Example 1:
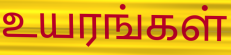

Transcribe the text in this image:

உயரங்கள்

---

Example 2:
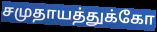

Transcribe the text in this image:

சமுதாயத்துக்கோ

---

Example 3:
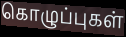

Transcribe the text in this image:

கொழுப்புகள்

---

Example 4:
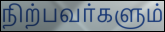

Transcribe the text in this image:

நிற்பவர்களும்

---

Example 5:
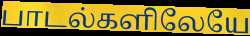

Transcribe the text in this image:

பாடல்களிலேயே